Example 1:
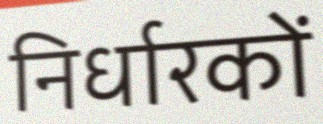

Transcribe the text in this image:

निर्धारकों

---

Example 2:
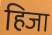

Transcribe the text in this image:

हिजा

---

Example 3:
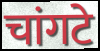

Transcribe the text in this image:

चांगटे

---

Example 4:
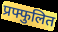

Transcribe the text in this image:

प्रफ्फुलित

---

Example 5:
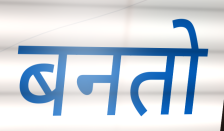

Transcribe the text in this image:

बनतो